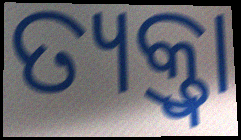
ତ୍ୟକ୍ତ୍ୱା